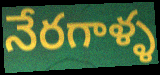
నేరగాళ్ళ